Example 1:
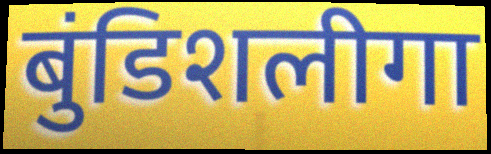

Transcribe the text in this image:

बुंडिशलीगा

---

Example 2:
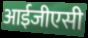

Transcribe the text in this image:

आईजीएसी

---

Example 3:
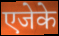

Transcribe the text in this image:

एजेके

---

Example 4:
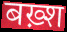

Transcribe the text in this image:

बख़्श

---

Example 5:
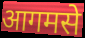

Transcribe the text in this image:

आगमसे